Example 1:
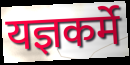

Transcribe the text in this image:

यज्ञकर्मे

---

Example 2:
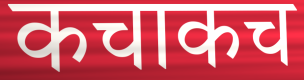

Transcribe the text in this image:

कचाकच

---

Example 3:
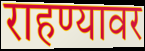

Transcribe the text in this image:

राहण्यावर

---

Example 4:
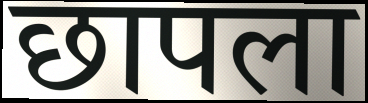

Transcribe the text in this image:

छापला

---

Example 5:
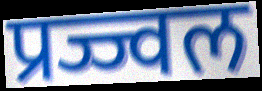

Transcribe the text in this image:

प्रज्ज्वल